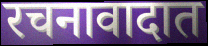
रचनावादात